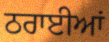
ਠਰਾਈਆਂ